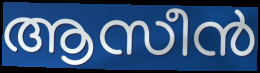
ആസീൻ